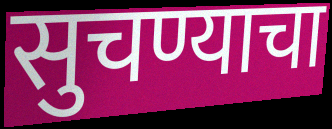
सुचण्याचा